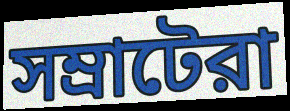
সম্রাটেরা